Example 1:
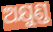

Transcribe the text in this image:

ଅକ୍ଷୁଣ୍ଡ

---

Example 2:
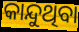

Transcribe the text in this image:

କାନ୍ଦୁଥିବା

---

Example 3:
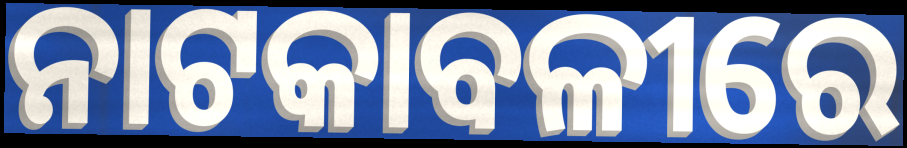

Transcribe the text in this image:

ନାଟକାବଳୀରେ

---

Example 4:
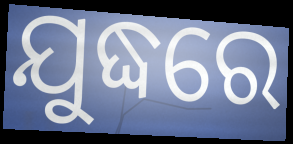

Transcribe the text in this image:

ଯୁଦ୍ଧରେ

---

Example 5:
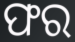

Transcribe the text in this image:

ଫର